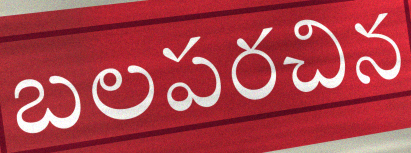
బలపరచిన